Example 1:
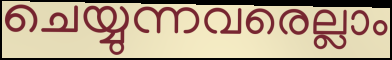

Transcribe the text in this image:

ചെയ്യുന്നവരെല്ലാം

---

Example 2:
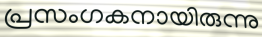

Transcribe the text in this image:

പ്രസംഗകനായിരുന്നു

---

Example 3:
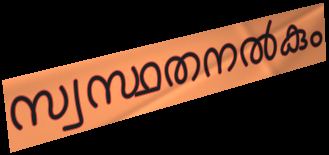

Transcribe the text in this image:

സ്വസ്ഥതനൽകും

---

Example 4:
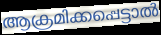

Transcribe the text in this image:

ആക്രമിക്കപ്പെട്ടാൽ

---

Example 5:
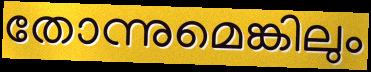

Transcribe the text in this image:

തോന്നുമെങ്കിലും